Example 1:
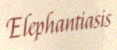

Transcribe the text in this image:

Elephantiasis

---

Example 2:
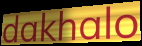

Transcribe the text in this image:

dakhalo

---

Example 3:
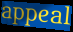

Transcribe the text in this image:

appeal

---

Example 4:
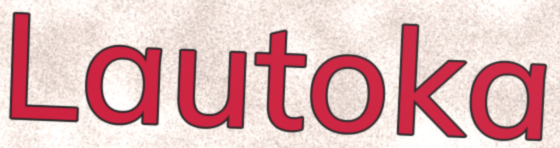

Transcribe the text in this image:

Lautoka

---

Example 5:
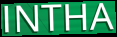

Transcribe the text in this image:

INTHA